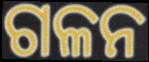
ଗଳନ